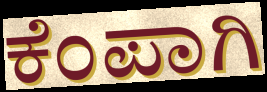
ಕೆಂಪಾಗಿ